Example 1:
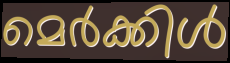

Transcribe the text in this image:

മെർക്കിൾ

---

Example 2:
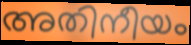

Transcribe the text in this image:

അതിനീയം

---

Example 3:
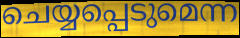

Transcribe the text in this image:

ചെയ്യപ്പെടുമെന്ന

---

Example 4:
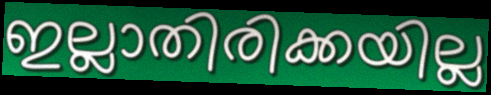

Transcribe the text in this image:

ഇല്ലാതിരിക്കയില്ല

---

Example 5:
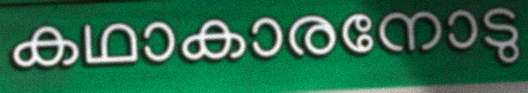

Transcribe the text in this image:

കഥാകാരനോടു